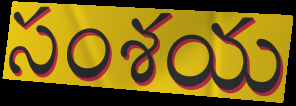
సంశయ